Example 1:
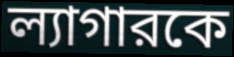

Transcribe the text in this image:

ল্যাগারকে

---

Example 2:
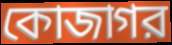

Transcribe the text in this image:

কোজাগর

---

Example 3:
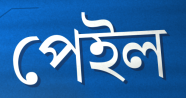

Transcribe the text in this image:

পেইল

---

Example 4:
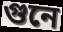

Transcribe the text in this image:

গুনে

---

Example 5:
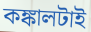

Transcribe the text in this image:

কঙ্কালটাই